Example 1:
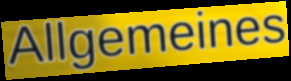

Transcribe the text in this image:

Allgemeines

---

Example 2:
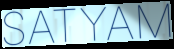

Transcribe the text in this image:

SATYAM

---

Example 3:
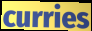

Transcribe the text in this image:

curries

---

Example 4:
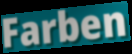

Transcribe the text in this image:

Farben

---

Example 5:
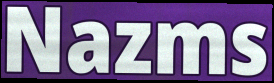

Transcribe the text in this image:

Nazms